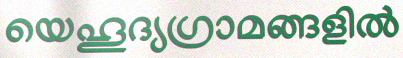
യെഹൂദ്യഗ്രാമങ്ങളിൽ